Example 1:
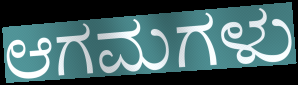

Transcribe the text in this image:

ಆಗಮಗಳು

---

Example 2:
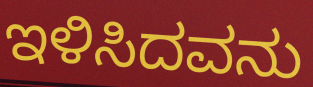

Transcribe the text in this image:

ಇಳಿಸಿದವನು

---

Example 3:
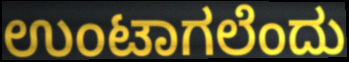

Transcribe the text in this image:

ಉಂಟಾಗಲೆಂದು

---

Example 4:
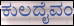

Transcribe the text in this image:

ಕುಲದೈವಂ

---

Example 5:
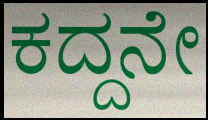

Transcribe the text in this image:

ಕದ್ದನೇ